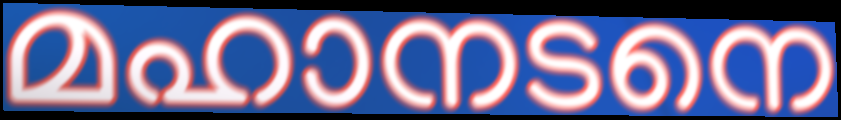
മഹാനടനെ